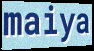
maiya